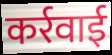
कर्रवाई